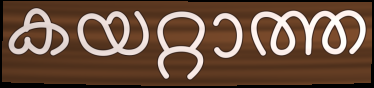
കയറ്റാത്ത